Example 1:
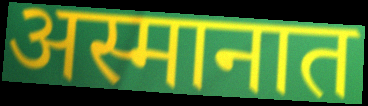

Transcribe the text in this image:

अस्मानात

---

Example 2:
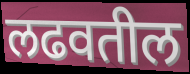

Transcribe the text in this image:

लढवतील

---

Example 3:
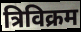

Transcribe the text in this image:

त्रिविक्रम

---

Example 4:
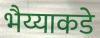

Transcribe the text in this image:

भैय्याकडे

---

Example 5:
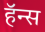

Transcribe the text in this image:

हॅन्स